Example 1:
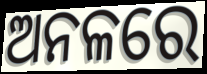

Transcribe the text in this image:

ଅନଳରେ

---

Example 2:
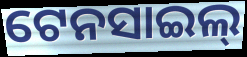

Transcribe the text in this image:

ଟେନସାଇଲ୍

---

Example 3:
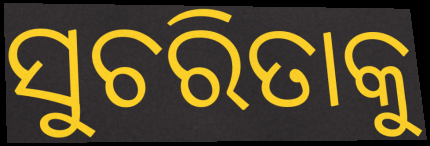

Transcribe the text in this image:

ସୁଚରିତାକୁ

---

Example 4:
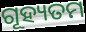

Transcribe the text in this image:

ଗୂହ୍ୟତମ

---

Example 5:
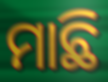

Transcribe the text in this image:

ମାଛି